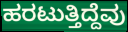
ಹರಟುತ್ತಿದ್ದೆವು